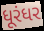
ધૂરંધર